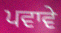
ਪਵਾਵੇ